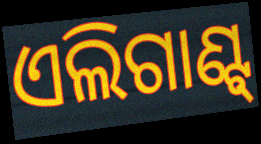
ଏଲିଗାଣ୍ଟ୍